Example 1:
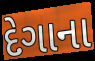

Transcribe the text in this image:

દેગાના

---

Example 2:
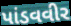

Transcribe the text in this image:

પાંડવવીર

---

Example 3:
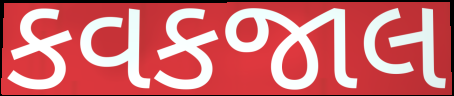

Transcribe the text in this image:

કવકજાલ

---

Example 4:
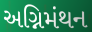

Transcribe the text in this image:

અગ્નિમંથન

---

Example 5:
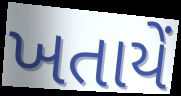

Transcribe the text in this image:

ખતાયેં